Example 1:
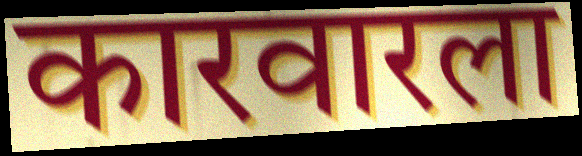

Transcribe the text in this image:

कारवारला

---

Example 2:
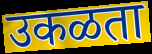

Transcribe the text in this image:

उकळता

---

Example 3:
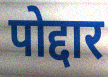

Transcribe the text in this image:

पोद्दार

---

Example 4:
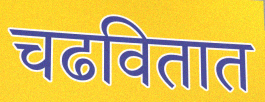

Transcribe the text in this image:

चढवितात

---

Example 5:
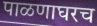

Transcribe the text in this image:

पाळणाघरच